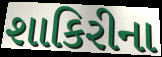
શાકિરીના